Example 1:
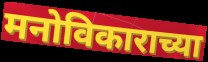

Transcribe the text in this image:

मनोविकाराच्या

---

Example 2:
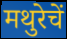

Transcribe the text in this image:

मथुरेचें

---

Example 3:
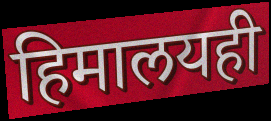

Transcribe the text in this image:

हिमालयही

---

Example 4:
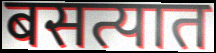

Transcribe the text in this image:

बसत्यात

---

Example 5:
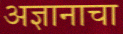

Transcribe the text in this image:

अज्ञानाचा